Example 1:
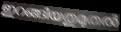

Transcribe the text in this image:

ഇറങ്ങിയതുമുതൽ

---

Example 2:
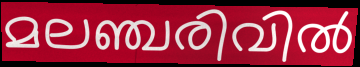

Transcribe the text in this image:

മലഞ്ചരിവിൽ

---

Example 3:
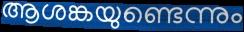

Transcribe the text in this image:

ആശങ്കയുണ്ടെന്നും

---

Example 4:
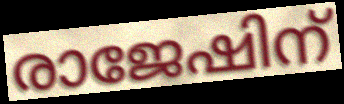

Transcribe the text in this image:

രാജേഷിന്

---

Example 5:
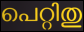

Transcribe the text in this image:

പെറ്റിതു